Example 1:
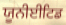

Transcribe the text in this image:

ਯੂਨੀਈਟਿਡ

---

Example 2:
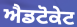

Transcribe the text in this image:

ਐਡਟੋਕੇਟ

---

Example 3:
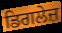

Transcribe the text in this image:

ਡਿਗਲੇਜ਼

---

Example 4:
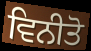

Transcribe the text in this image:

ਵਿਨੀਤੋ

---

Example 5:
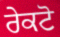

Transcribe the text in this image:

ਰੇਕਟੋ